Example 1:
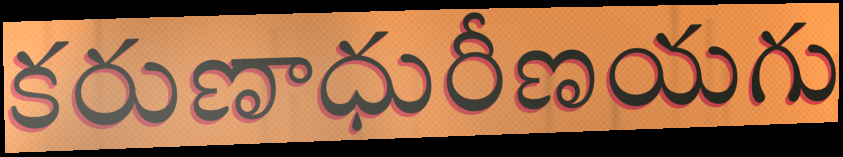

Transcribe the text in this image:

కరుణాధురీణయగు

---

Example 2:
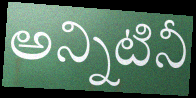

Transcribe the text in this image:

అన్నిటినీ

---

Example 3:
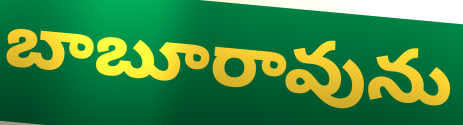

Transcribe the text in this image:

బాబూరావును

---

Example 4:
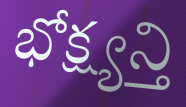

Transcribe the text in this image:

భోక్ష్యన్తి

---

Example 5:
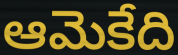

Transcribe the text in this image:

ఆమెకేది